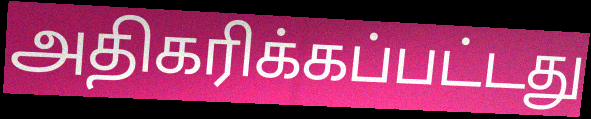
அதிகரிக்கப்பட்டது